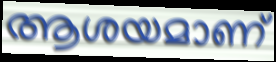
ആശയമാണ്